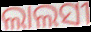
ଲାଲସୀ